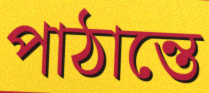
পাঠান্তে